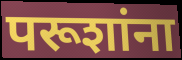
परूशांना